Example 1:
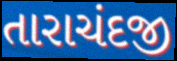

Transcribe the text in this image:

તારાચંદજી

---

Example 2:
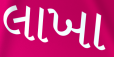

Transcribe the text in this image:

લાખા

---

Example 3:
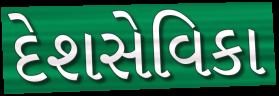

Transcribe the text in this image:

દેશસેવિકા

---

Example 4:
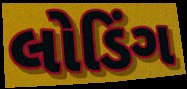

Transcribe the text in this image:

લોડિંગ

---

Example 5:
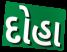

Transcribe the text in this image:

દોહા